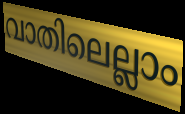
വാതിലെല്ലാം